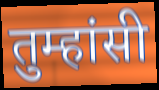
तुम्हांसी